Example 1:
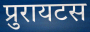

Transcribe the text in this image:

प्रुरायटस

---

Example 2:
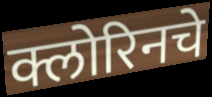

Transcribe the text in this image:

क्लोरिनचे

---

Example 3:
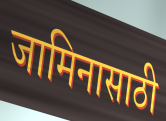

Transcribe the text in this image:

जामिनासाठी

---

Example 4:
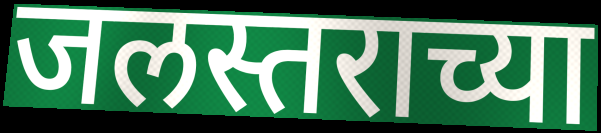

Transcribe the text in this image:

जलस्तराच्या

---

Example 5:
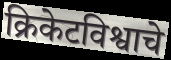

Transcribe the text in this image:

क्रिकेटविश्वाचे